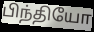
பிந்தியோ